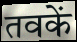
तवकें